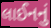
લાઈનનું